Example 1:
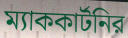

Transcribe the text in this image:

ম্যাককার্টনির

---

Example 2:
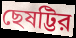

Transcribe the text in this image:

ছেষট্টির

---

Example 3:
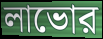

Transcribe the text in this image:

লাভোর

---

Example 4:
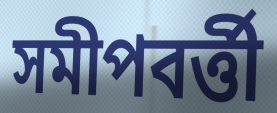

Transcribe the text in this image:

সমীপবর্ত্তী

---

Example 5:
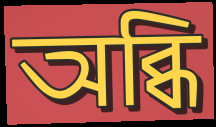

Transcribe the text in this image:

অব্ধি